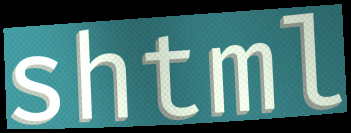
shtml